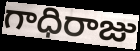
గాధిరాజు